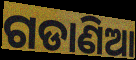
ଗଡାଣିଆ